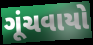
ગૂંચવાયો